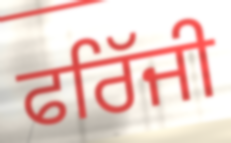
ਫਰਿੱਜੀ